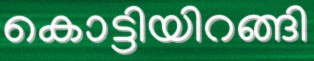
കൊട്ടിയിറങ്ങി